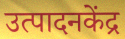
उत्पादनकेंद्र